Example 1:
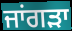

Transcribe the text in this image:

ਜਾਂਗੜਾ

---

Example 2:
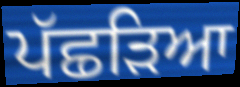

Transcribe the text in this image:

ਪੱਛੜਿਆ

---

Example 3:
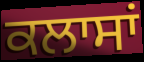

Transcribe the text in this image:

ਕਲਾਸਾਂ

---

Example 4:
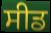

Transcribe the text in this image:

ਸੀਡ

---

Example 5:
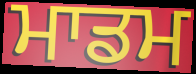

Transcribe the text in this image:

ਮਾਡਮ